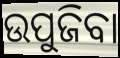
ଉପୁଜିବା